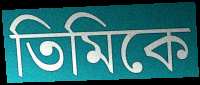
তিমিকে